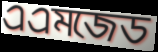
এএমজেড